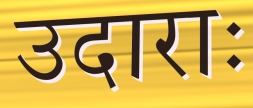
उदाराः